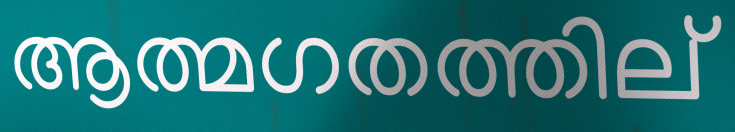
ആത്മഗതത്തില്